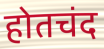
होतचंद